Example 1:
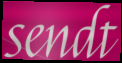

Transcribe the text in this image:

sendt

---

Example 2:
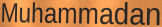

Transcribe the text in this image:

Muhammadan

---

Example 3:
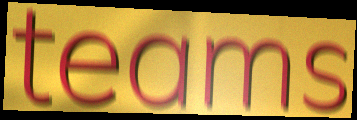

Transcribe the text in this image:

teams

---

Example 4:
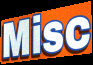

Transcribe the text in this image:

Misc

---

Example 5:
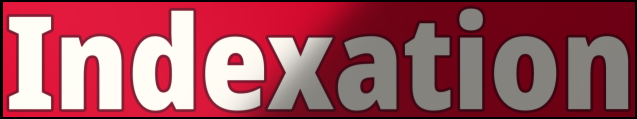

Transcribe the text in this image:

Indexation